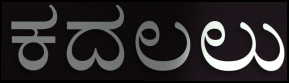
ಕದಲಲು